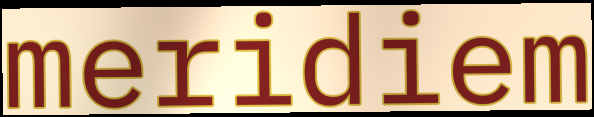
meridiem